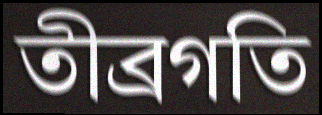
তীব্রগতি